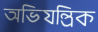
অভিযন্ত্ৰিক